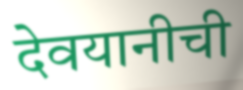
देवयानीची